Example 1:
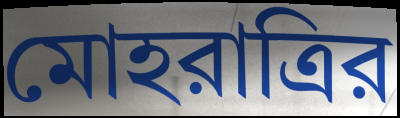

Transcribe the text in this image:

মোহরাত্রির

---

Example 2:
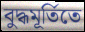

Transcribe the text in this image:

বুদ্ধমূর্তিতে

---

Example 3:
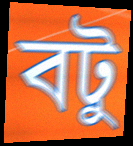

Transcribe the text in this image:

বটু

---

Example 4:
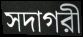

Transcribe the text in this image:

সদাগরী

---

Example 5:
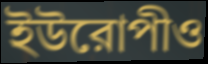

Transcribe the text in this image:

ইউরোপীও